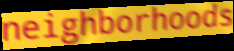
neighborhoods